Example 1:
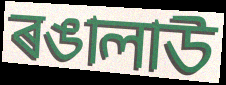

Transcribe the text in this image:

ৰঙালাউ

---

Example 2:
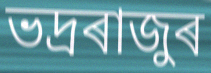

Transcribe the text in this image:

ভদ্ৰৰাজুৰ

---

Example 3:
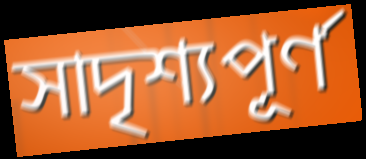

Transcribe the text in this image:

সাদৃশ্যপূৰ্ণ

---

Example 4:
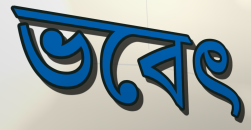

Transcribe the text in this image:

ভবেৎ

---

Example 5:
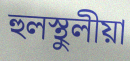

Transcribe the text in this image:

হুলস্থুলীয়া